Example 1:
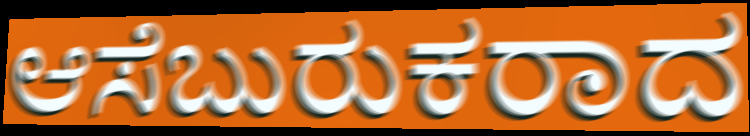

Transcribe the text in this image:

ಆಸೆಬುರುಕರಾದ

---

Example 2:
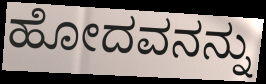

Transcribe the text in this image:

ಹೋದವನನ್ನು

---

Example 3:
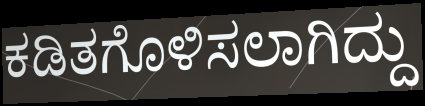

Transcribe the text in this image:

ಕಡಿತಗೊಳಿಸಲಾಗಿದ್ದು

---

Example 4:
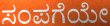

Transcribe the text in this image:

ಸಂಪಗೆಯೇ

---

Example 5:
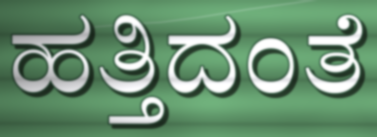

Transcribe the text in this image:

ಹತ್ತಿದಂತೆ